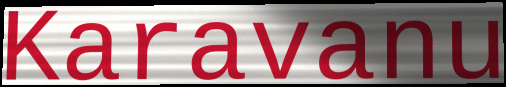
Karavanu